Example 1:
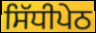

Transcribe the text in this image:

ਸਿੱਧੀਪੇਠ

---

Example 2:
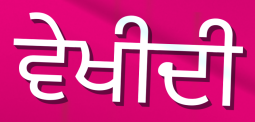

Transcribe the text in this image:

ਵੇਖੀਦੀ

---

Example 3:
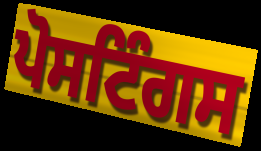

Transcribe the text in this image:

ਪੋਸਟਿੰਗਸ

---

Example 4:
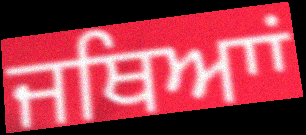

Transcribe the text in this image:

ਜਥਿਆਾਂ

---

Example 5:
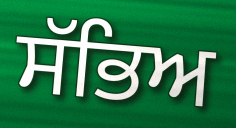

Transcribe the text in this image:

ਸੱਭਿਅ